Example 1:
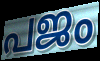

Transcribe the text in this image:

പജം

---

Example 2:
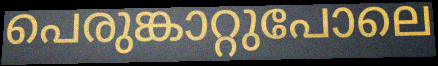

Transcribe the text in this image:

പെരുങ്കാറ്റുപോലെ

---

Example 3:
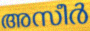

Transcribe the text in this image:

അസീർ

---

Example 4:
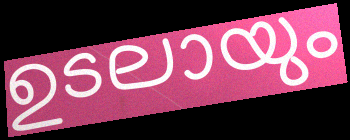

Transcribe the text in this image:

ഉടലായും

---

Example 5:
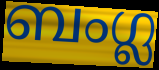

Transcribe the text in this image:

ബംഗ്ല